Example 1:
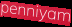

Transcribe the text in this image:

penniyam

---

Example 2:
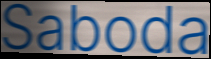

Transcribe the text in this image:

Saboda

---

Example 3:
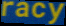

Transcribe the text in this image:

racy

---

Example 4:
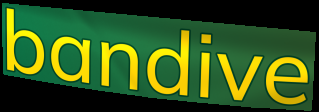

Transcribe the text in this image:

bandive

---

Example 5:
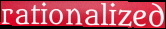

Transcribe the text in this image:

rationalized